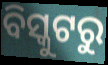
ବିସ୍କୁଟରୁ